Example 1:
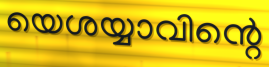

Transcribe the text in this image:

യെശയ്യാവിന്റെ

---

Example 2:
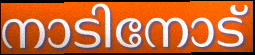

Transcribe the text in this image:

നാടിനോട്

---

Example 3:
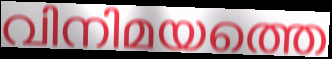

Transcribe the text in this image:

വിനിമയത്തെ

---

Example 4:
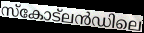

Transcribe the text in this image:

സ്കോട്ലൻഡിലെ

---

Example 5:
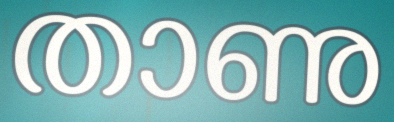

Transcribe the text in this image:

താണു